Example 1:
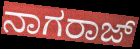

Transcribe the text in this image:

ನಾಗರಾಜ್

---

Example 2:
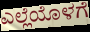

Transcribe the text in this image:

ಎಲ್ಲೆಯೊಳಗೆ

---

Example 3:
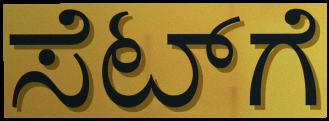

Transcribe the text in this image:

ಸೆಟ್‌ಗೆ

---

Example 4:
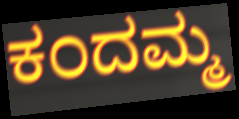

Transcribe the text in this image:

ಕಂದಮ್ಮ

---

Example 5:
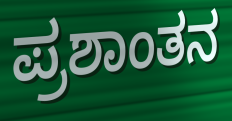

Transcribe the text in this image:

ಪ್ರಶಾಂತನ